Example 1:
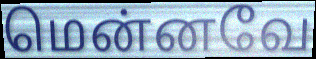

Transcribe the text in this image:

மென்னவே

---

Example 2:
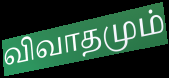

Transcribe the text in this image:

விவாதமும்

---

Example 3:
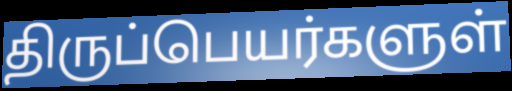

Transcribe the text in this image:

திருப்பெயர்களுள்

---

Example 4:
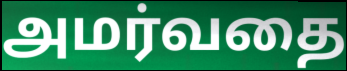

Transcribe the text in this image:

அமர்வதை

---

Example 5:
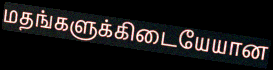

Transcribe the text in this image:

மதங்களுக்கிடையேயான